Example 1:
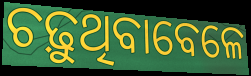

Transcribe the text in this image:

ଚଢ଼ୁଥିବାବେଳେ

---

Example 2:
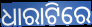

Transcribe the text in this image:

ଧାରାଟିରେ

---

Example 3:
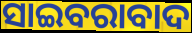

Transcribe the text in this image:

ସାଇବରାବାଦ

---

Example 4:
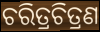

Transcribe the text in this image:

ଚରିତ୍ରଚିତ୍ରଣ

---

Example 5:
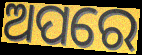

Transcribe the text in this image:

ଅପରେ